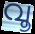
വൂ